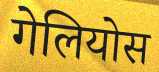
गेलियोस